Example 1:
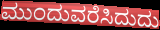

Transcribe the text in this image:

ಮುಂದುವರೆಸಿದುದು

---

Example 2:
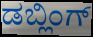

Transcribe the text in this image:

ಡಬ್ಲಿಂಗ್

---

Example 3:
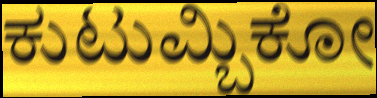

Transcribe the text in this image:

ಕುಟುಮ್ಬಿಕೋ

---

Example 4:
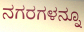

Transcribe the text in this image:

ನಗರಗಳನ್ನೂ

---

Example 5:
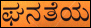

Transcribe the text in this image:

ಘನತೆಯ